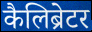
कैलिब्रेटर